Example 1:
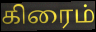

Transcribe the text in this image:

கிரைம்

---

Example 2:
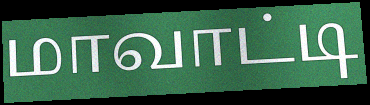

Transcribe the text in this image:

மாவாட்டி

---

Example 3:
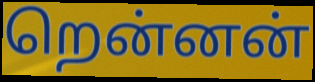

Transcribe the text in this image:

றென்னன்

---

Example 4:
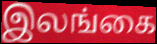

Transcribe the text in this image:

இலங்கை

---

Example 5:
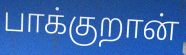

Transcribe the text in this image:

பாக்குறான்